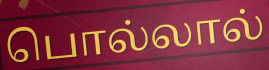
பொல்லால்